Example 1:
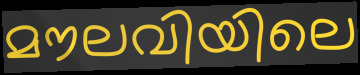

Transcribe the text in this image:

മൗലവിയിലെ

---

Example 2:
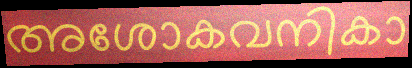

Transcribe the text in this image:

അശോകവനികാ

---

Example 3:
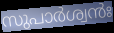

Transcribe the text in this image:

സുപാർശ്വൻഃ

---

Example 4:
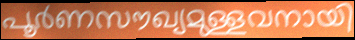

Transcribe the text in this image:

പൂർണസൗഖ്യമുള്ളവനായി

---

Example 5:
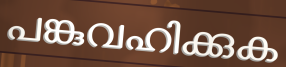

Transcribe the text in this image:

പങ്കുവഹിക്കുക